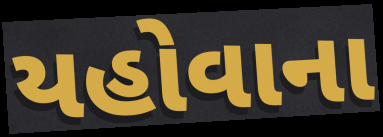
યહોવાના